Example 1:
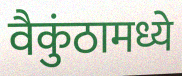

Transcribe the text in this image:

वैकुंठामध्ये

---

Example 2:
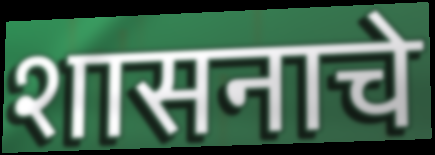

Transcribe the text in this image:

शासनाचे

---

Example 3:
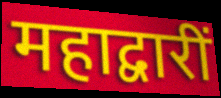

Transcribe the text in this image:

महाद्वारीं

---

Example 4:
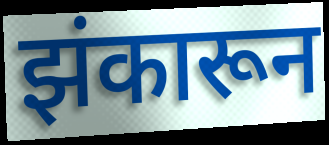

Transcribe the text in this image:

झंकारून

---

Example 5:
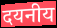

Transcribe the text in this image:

दयनीय